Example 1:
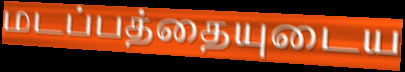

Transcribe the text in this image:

மடப்பத்தையுடைய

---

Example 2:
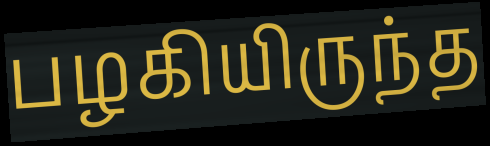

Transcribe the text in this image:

பழகியிருந்த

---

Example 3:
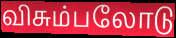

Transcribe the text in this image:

விசும்பலோடு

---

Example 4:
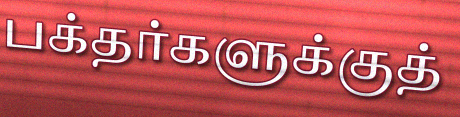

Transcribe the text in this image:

பக்தர்களுக்குத்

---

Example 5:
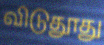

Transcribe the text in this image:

விடுதூது